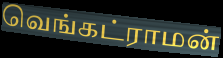
வெங்கட்ராமன்